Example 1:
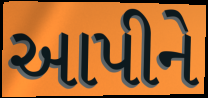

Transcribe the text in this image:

આપીને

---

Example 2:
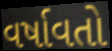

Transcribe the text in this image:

વર્ષાવતો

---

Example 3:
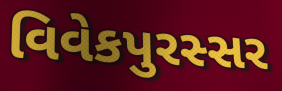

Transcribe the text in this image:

વિવેકપુરસ્સર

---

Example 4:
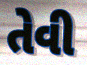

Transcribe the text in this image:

તેવી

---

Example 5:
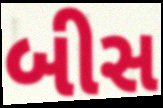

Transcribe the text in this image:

બીસ